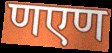
णएण